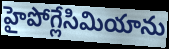
హైపోగ్లేసిమియాను